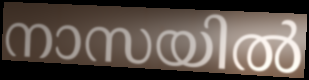
നാസയിൽ